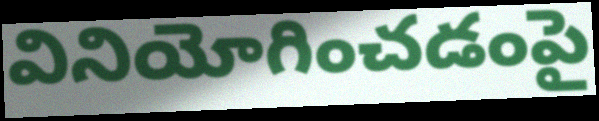
వినియోగించడంపై